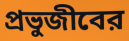
প্রভুজীবের